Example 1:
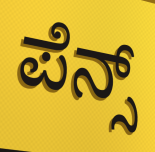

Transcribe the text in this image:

ಪೆನ್ಸ್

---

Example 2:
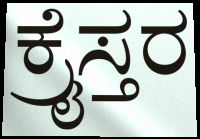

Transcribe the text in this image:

ಕ್ರೈಸ್ತರ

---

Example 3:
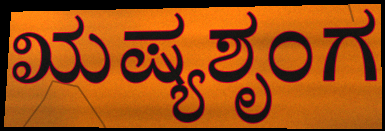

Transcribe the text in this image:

ಋಷ್ಯಶೃಂಗ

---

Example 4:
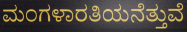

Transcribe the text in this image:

ಮಂಗಳಾರತಿಯನೆತ್ತುವೆ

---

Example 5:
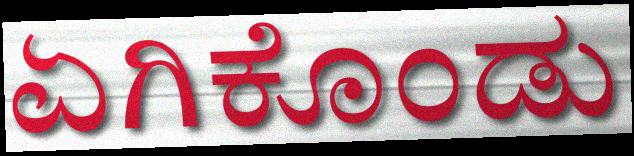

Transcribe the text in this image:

ಏಗಿಕೊಂಡು